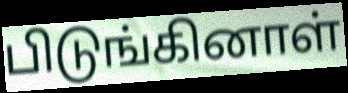
பிடுங்கினாள்